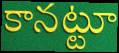
కానట్టూ